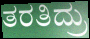
ತರತಿದ್ರು